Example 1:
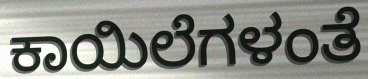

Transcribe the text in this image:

ಕಾಯಿಲೆಗಳಂತೆ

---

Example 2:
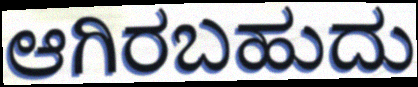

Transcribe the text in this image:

ಆಗಿರಬಹುದು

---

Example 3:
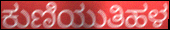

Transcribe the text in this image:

ಕುಣಿಯುತಿಹಳ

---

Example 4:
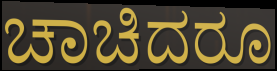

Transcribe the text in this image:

ಚಾಚಿದರೂ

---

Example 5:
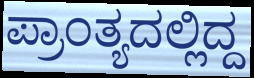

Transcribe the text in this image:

ಪ್ರಾಂತ್ಯದಲ್ಲಿದ್ದ